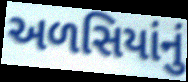
અળસિયાંનું